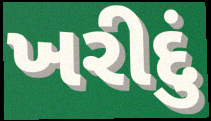
ખરીદું